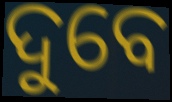
ଦୁବେ